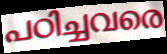
പഠിച്ചവരെ